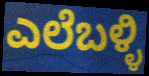
ಎಲೆಬಳ್ಳಿ